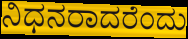
ನಿಧನರಾದರೆಂದು